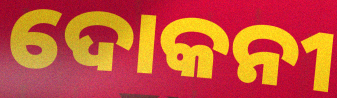
ଦୋକନୀ